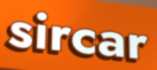
sircar